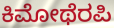
ಕಿಮೋಥೆರಪಿ